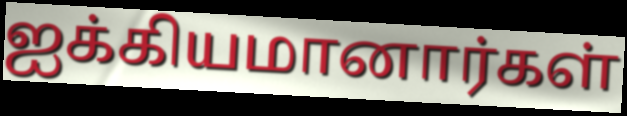
ஐக்கியமானார்கள்